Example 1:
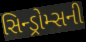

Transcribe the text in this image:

સિન્ડ્રોમ્સની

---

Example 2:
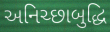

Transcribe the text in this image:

અનિચ્છાબુદ્ધિ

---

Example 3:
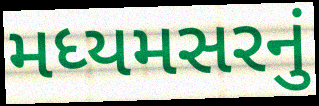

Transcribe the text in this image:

મધ્યમસરનું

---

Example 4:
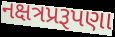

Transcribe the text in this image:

નક્ષત્રપ્રરૂપણા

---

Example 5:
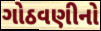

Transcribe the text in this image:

ગોઠવણીનો